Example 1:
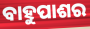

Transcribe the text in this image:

ବାହୁପାଶର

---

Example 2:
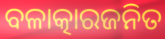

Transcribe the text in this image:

ବଳାତ୍କାରଜନିତ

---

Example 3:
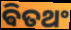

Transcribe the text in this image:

ଵିତଥଂ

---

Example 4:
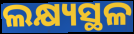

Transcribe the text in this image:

ଲକ୍ଷ୍ୟସ୍ଥଳ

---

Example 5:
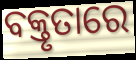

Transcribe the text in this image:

ବକ୍ତୃତାରେ